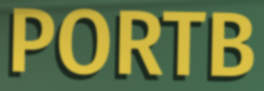
PORTB